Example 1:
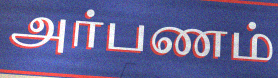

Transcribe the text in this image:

அர்பணம்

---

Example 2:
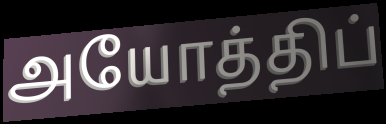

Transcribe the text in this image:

அயோத்திப்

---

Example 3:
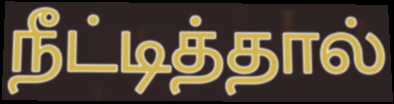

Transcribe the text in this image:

நீட்டித்தால்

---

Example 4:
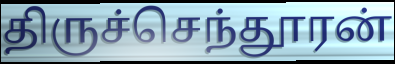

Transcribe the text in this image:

திருச்செந்தூரன்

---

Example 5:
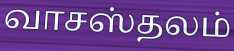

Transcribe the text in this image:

வாசஸ்தலம்